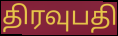
திரவுபதி